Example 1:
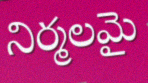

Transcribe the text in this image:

నిర్మలమై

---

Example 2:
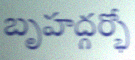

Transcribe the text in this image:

బృహద్గర్భో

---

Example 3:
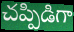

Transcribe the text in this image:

చప్పిడిగా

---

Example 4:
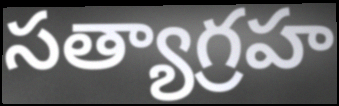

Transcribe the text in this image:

సత్యాగ్రహ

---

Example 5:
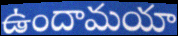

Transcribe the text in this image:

ఉందామయా